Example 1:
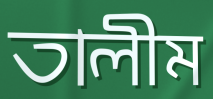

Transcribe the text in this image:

তালীম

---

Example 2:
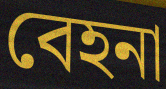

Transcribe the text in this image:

বেহনা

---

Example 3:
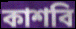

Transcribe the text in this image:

কাশবি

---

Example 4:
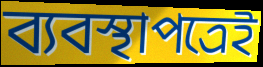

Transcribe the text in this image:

ব্যবস্থাপত্রেই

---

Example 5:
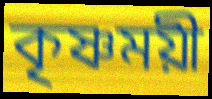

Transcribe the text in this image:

কৃষ্ণময়ী